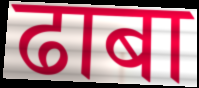
ढाबा